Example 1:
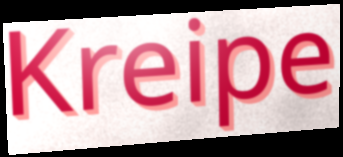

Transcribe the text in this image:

Kreipe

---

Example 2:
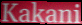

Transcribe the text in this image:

Kakani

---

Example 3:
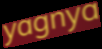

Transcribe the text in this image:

yagnya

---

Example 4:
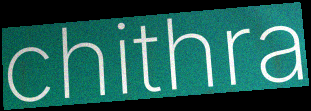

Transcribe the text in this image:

chithra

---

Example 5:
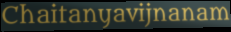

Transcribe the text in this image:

Chaitanyavijnanam